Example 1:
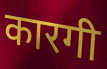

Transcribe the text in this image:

कारगी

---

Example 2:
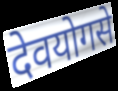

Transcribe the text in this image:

देवयोगसे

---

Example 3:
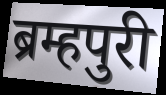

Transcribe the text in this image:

ब्रम्हपुरी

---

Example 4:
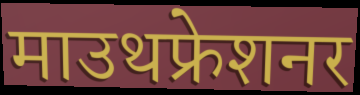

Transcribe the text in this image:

माउथफ्रेशनर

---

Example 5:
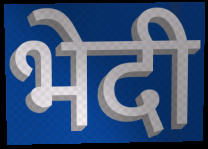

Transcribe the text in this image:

भेदी